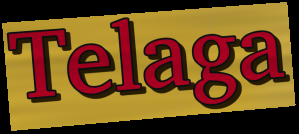
Telaga